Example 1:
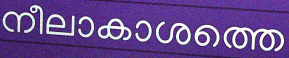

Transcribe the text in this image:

നീലാകാശത്തെ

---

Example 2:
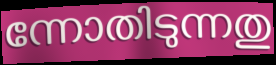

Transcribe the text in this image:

ന്നോതിടുന്നതു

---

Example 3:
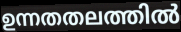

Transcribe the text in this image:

ഉന്നതതലത്തിൽ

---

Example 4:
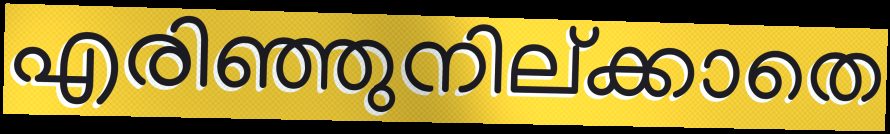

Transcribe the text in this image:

എരിഞ്ഞുനില്ക്കാതെ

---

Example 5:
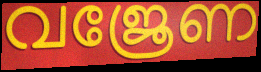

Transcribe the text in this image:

വജ്രേണ